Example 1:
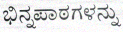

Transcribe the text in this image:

ಭಿನ್ನಪಾಠಗಳನ್ನು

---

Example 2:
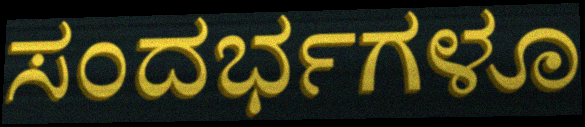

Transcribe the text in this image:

ಸಂದರ್ಭಗಳೂ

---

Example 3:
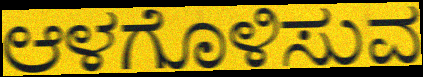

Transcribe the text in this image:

ಆಳಗೊಳಿಸುವ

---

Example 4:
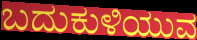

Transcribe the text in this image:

ಬದುಕುಳಿಯುವ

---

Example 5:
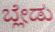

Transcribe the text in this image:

ಬ್ಲೇಡು